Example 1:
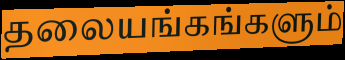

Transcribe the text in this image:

தலையங்கங்களும்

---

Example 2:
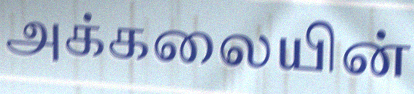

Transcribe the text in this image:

அக்கலையின்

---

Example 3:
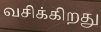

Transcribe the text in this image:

வசிக்கிறது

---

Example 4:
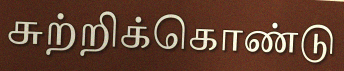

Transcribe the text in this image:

சுற்றிக்கொண்டு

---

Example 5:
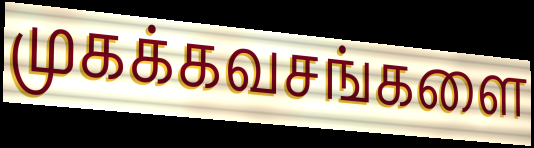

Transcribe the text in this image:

முகக்கவசங்களை